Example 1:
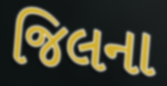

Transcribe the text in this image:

જિલના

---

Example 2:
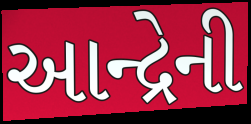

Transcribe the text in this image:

આન્દ્રેની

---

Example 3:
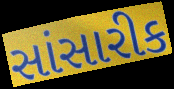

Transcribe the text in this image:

સાંસારીક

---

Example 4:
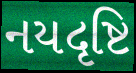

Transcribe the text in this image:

નયદૃષ્ટિ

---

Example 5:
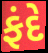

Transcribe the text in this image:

ફંદે